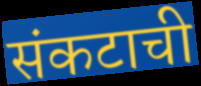
संकटाची